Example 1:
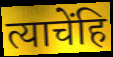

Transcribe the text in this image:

त्याचेंहि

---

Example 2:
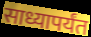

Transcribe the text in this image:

साध्यापर्यंत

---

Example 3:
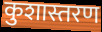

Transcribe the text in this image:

कुशास्तरण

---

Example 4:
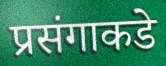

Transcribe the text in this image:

प्रसंगाकडे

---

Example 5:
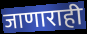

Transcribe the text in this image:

जाणाराही